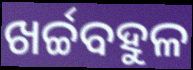
ଖର୍ଚ୍ଚବହୁଳ